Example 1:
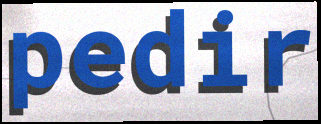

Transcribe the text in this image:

pedir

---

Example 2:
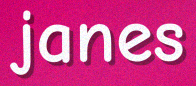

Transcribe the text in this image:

janes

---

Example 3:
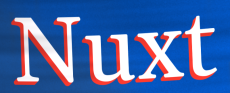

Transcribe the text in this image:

Nuxt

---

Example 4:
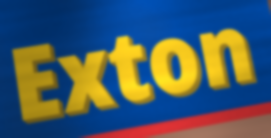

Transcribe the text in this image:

Exton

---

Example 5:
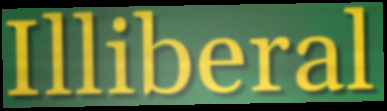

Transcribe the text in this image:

Illiberal